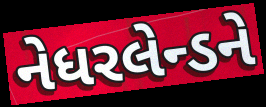
નેધરલેન્ડને